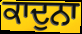
ਕਾਦੁਨਾ